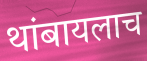
थांबायलाच